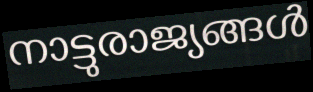
നാട്ടുരാജ്യങ്ങൾ